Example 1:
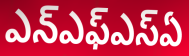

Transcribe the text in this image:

ఎన్ఎఫ్ఎస్ఏ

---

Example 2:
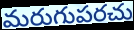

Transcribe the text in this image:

మరుగుపరచు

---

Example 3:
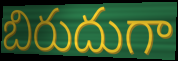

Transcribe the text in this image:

బిరుదుగా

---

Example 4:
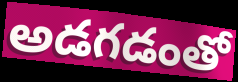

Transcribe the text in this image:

అడగడంతో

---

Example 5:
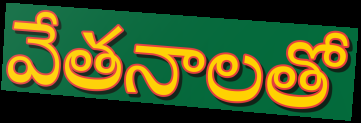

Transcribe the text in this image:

వేతనాలతో